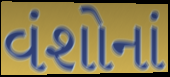
વંશોનાં